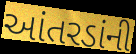
આંતરડાંની